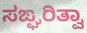
ಸಙ್ಘರಿತ್ವಾ